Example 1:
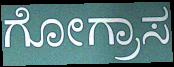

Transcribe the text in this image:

ಗೋಗ್ರಾಸ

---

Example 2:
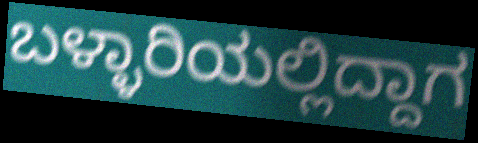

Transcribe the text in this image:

ಬಳ್ಳಾರಿಯಲ್ಲಿದ್ದಾಗ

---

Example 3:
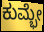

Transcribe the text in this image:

ಕುಮ್ಭೇ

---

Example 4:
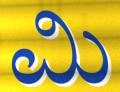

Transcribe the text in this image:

ಮಿ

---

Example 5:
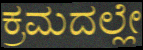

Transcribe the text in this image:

ಕ್ರಮದಲ್ಲೇ